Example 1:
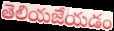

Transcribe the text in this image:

తెలియజేయడం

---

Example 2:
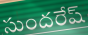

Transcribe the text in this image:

సుందరేష్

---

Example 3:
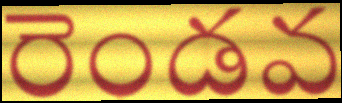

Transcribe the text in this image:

రెండవ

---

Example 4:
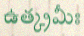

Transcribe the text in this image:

ఉత్క్రమీః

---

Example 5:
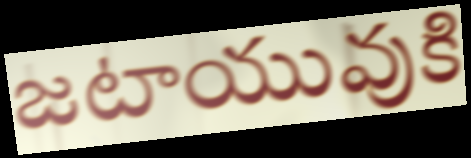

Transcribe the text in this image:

జటాయువుకి